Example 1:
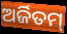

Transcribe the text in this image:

ଅର୍ଜିତମ୍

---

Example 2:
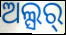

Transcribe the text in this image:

ଅଲ୍ସର୍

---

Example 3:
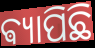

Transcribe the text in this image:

ଵ୍ୟାପିଛି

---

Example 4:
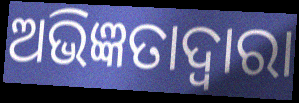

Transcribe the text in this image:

ଅଭିଜ୍ଞତାଦ୍ଵାରା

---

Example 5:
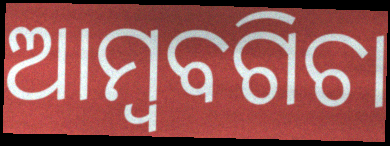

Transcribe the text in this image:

ଆମ୍ବବଗିଚା